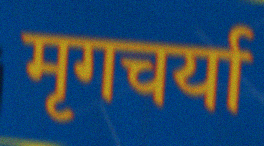
मृगचर्या